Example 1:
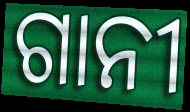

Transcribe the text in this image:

ଗାନୀ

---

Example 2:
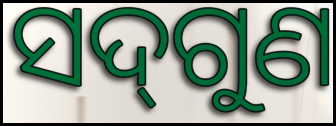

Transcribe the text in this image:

ସଦ୍‌ଗୁଣ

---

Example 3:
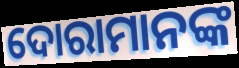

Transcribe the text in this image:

ଦୋରାମାନଙ୍କ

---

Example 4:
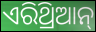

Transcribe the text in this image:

ଏରିଥ୍ରିଆନ୍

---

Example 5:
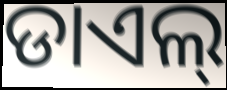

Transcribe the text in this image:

ଡାଏଲ୍